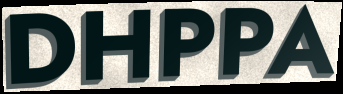
DHPPA